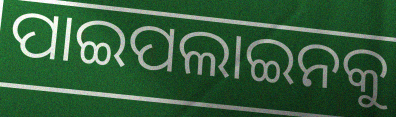
ପାଇପଲାଇନକୁ